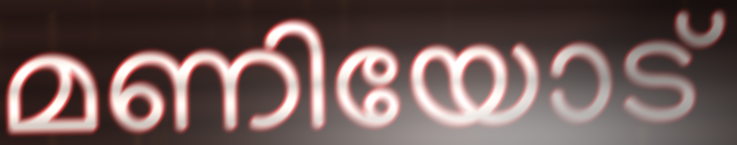
മണിയോട്